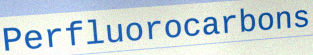
Perfluorocarbons